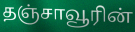
தஞ்சாவூரின்